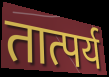
तात्पर्य